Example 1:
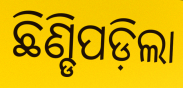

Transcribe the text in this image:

ଛିଣ୍ଡିପଡ଼ିଲା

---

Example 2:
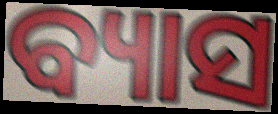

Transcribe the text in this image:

ବ୍ୟାସ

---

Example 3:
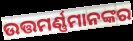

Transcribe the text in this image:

ଉତ୍ତମର୍ଣ୍ଣମାନଙ୍କର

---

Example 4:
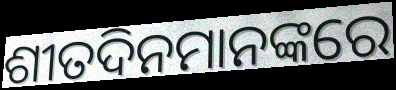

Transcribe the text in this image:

ଶୀତଦିନମାନଙ୍କରେ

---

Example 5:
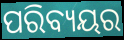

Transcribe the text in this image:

ପରିବ୍ୟୟର